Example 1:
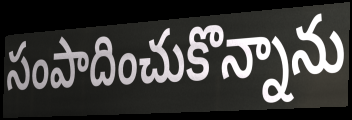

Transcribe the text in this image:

సంపాదించుకొన్నాను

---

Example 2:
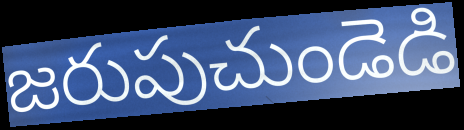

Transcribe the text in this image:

జరుపుచుండెడి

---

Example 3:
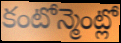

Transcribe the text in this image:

కంటోన్మెంట్లో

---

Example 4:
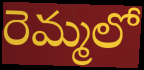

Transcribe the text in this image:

రెమ్మలో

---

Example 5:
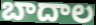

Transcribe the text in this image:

బాదాల